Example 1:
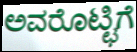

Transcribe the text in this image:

ಅವರೊಟ್ಟಿಗೆ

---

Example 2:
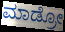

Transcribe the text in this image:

ಮಾಡ್ರೋ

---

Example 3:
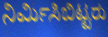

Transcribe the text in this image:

ನಿರ್ಮಿಸಿಬಿಟ್ಟರು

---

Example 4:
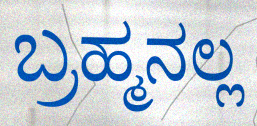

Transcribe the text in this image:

ಬ್ರಹ್ಮನಲ್ಲ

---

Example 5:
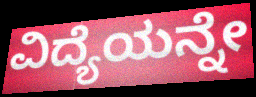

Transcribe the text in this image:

ವಿದ್ಯೆಯನ್ನೇ